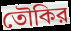
তৌকির